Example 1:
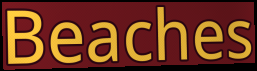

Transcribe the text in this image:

Beaches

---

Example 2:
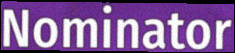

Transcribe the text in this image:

Nominator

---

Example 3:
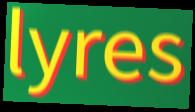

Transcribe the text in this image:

lyres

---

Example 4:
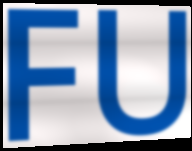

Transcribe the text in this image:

FU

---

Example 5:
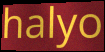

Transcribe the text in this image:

halyo